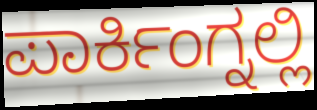
ಪಾರ್ಕಿಂಗ್ನಲ್ಲಿ